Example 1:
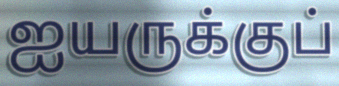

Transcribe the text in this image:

ஐயருக்குப்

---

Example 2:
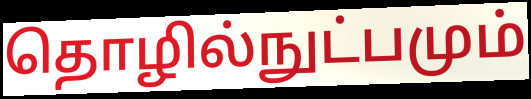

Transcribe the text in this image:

தொழில்நுட்பமும்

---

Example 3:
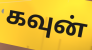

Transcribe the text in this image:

கவுன்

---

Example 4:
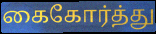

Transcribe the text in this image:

கைகோர்த்து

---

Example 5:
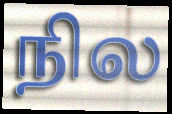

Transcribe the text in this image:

நில